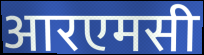
आरएमसी